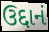
ઉદ્દાનં